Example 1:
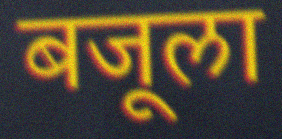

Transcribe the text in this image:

बजूला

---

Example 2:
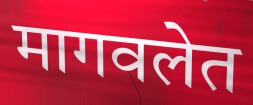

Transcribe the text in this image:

मागवलेत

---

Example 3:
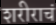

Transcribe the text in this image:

शरीराचं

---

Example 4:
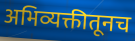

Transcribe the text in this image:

अभिव्यक्तीतूनच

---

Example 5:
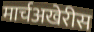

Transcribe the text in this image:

मार्चअखेरीस